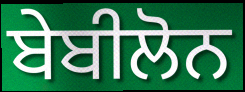
ਬੇਬੀਲੋਨ